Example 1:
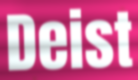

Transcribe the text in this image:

Deist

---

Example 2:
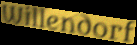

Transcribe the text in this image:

Willendorf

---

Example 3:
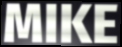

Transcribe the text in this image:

MIKE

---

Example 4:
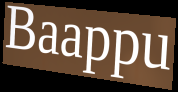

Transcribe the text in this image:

Baappu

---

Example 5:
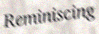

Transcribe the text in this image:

Reminiscing